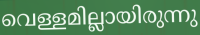
വെള്ളമില്ലായിരുന്നു